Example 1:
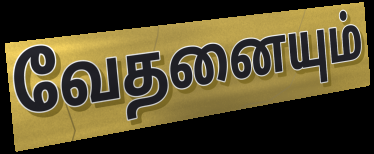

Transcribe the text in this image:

வேதனையும்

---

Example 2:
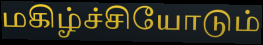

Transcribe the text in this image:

மகிழ்ச்சியோடும்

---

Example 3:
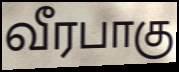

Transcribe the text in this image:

வீரபாகு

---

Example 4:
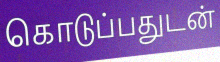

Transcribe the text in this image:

கொடுப்பதுடன்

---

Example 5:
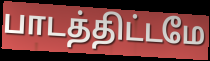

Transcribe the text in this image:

பாடத்திட்டமே